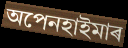
অপেনহাইমাৰ